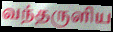
வந்தருளிய